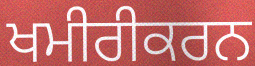
ਖਮੀਰੀਕਰਨ